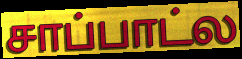
சாப்பாட்ல